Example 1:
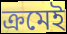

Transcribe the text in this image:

ক্রমেই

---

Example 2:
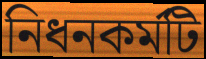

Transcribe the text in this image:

নিধনকর্মটি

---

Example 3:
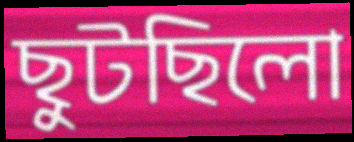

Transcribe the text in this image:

ছুটছিলো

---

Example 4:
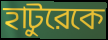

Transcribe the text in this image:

হাটুরেকে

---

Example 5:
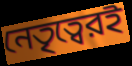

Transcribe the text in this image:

নেতৃত্বেরই